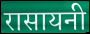
रासायनी